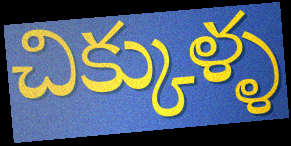
చిక్కుళ్ళ